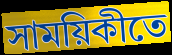
সাময়িকীতে